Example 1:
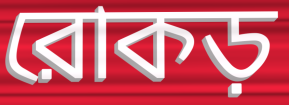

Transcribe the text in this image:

রোকড়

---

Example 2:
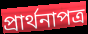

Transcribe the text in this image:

প্রার্থনাপত্র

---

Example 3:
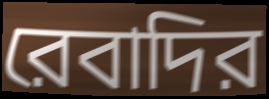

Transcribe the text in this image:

রেবাদির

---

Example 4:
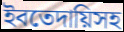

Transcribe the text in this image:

ইবতেদায়িসহ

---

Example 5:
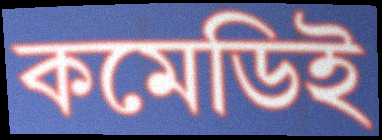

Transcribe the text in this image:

কমেডিই